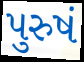
પુરુષં